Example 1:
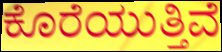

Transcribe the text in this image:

ಕೊರೆಯುತ್ತಿವೆ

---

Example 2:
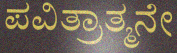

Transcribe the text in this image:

ಪವಿತ್ರಾತ್ಮನೇ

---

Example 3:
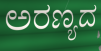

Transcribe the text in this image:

ಅರಣ್ಯದ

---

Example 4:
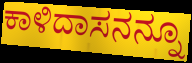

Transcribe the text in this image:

ಕಾಳಿದಾಸನನ್ನೂ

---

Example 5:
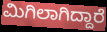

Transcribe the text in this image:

ಮಿಗಿಲಾಗಿದ್ದಾರೆ